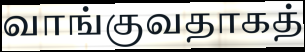
வாங்குவதாகத்